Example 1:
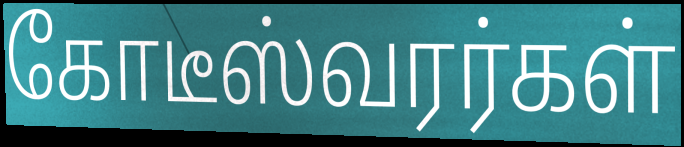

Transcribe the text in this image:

கோடீஸ்வரர்கள்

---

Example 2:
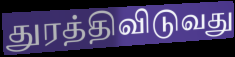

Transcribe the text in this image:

துரத்திவிடுவது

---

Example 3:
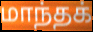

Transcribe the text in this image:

மாந்தக்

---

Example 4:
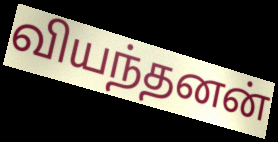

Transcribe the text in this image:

வியந்தனன்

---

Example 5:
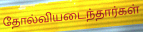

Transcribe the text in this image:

தோல்வியடைந்தார்கள்